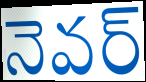
నెవర్